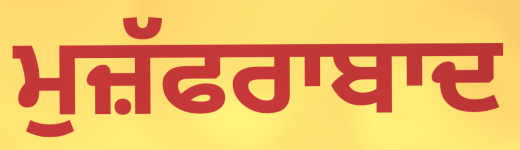
ਮੁਜ਼ੱਫਰਾਬਾਦ